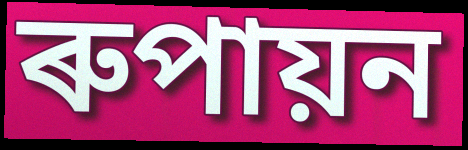
ৰুপায়ন